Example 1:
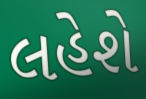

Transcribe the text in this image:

લહેશે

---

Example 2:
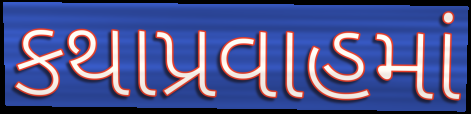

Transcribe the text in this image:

કથાપ્રવાહમાં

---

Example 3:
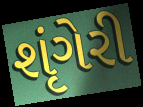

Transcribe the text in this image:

શૃંગેરી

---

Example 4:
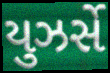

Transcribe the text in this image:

યુઝર્સે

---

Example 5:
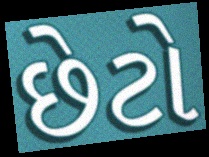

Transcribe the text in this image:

છેટો